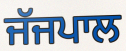
ਜੱਜਪਾਲ